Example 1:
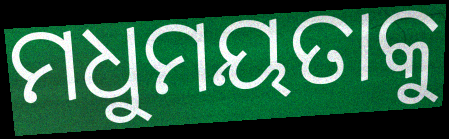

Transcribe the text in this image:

ମଧୁମୟତାକୁ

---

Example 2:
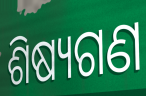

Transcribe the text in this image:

ଶିଷ୍ୟଗଣ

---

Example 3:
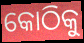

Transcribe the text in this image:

କୋଠିକୁ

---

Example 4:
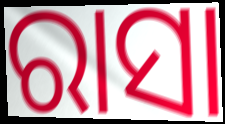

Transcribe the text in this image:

ରାସା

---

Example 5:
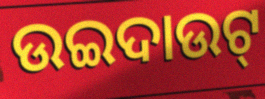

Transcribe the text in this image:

ଉଇଦାଉଟ୍